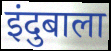
इंदुबाला